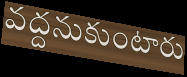
వద్దనుకుంటారు